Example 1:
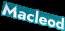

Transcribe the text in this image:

Macleod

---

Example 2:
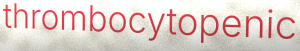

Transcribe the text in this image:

thrombocytopenic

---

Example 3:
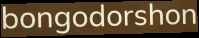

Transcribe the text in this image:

bongodorshon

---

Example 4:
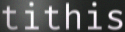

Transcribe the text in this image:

tithis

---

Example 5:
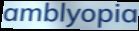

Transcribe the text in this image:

amblyopia